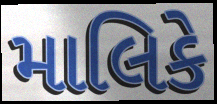
માલિકે